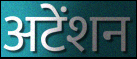
अटेंशन